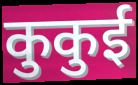
कुकुई